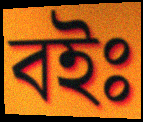
বইঃ